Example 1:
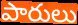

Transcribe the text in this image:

పారులు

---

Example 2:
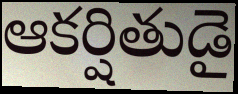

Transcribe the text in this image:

ఆకర్షితుడై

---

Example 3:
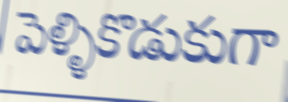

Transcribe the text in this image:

పెళ్ళికొడుకుగా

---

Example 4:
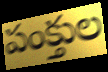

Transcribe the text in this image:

పంక్తుల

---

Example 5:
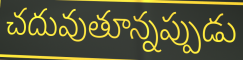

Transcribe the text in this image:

చదువుతూన్నప్పుడు